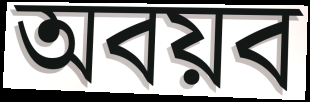
অবয়ব